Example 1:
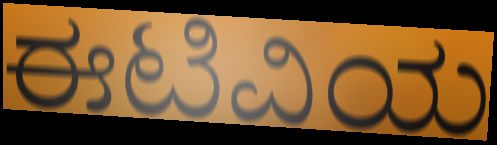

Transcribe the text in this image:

ಈಟಿವಿಯ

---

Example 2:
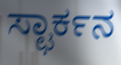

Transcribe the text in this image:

ಸ್ಟಾರ್ಕನ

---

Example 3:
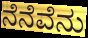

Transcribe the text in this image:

ನೆನೆವೆನು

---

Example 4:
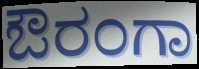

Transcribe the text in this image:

ಔರಂಗಾ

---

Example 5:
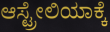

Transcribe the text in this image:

ಆಸ್ಟ್ರೇಲಿಯಾಕ್ಕೆ